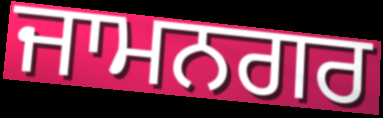
ਜਾਮਨਗਰ